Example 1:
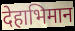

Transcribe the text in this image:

देहाभिमान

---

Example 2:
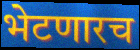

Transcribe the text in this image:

भेटणारच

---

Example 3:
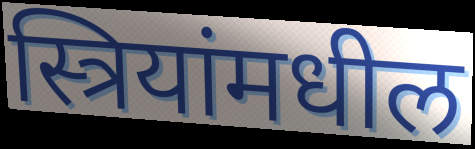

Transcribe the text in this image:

स्त्रियांमधील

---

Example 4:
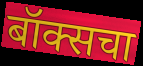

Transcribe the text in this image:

बॉक्सचा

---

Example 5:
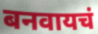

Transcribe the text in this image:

बनवायचं